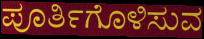
ಪೂರ್ತಿಗೊಳಿಸುವ